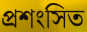
প্রশংসিত